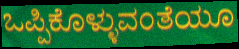
ಒಪ್ಪಿಕೊಳ್ಳುವಂತೆಯೂ